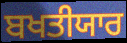
ਬਖਤੀਯਾਰ